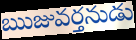
ఋజువర్తనుడు